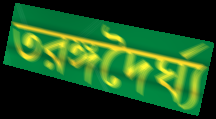
তরঙ্গদৈর্ঘ্য